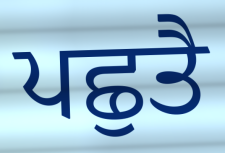
ਪਛੁਤੈ